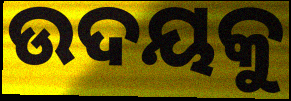
ଉଦୟକୁ